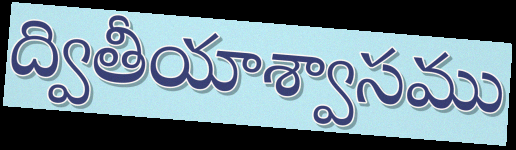
ద్వితీయాశ్వాసము